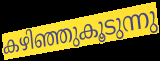
കഴിഞ്ഞുകൂടുന്നു